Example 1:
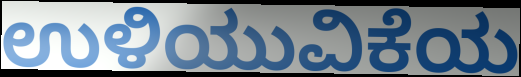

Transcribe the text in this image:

ಉಳಿಯುವಿಕೆಯ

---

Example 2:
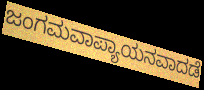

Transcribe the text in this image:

ಜಂಗಮವಾಪ್ಯಾಯನವಾದಡೆ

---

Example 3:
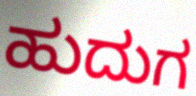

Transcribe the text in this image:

ಹುದುಗ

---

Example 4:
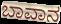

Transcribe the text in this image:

ಬಾವಾನ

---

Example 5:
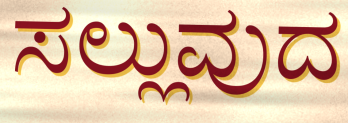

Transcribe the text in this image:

ಸಲ್ಲುವುದ